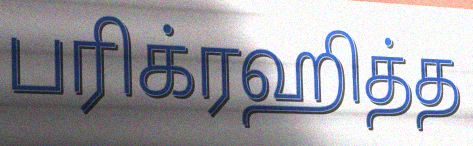
பரிக்ரஹித்த